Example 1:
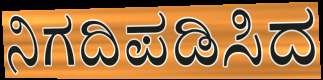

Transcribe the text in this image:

ನಿಗದಿಪಡಿಸಿದ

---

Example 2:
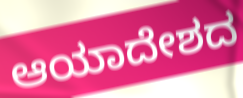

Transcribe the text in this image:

ಆಯಾದೇಶದ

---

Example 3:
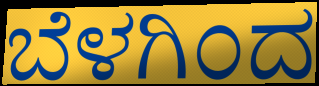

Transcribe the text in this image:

ಬೆಳಗಿಂದ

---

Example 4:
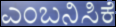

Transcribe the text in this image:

ಎಂಬನಿಸಿಕೆ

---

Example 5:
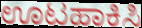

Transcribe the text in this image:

ಊಟಹಾಕಿಸಿ